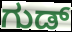
ಗುಡ್